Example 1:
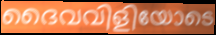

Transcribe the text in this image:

ദൈവവിളിയോടെ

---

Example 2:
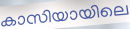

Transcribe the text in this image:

കാസിയായിലെ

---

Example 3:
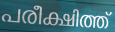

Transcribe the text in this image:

പരീക്ഷിത്ത്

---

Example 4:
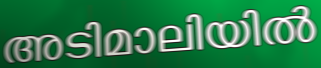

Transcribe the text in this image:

അടിമാലിയിൽ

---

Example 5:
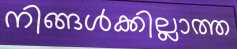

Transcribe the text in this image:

നിങ്ങൾക്കില്ലാത്ത